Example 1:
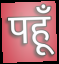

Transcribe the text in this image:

पहूँ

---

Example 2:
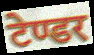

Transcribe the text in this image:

टेण्‍डर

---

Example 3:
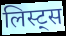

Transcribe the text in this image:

लिस्ट्स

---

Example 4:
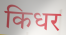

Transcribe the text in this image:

किधर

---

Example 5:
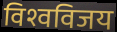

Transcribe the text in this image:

विश्वविजय